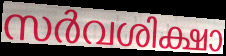
സർവശിക്ഷാ